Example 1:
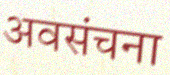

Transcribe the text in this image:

अवसंचना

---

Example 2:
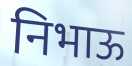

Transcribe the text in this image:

निभाऊ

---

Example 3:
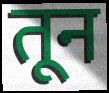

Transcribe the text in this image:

तून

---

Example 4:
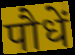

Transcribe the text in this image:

पौधें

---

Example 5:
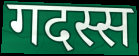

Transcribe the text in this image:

गदस्स